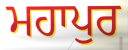
ਮਹਾਪੁਰ